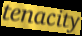
tenacity